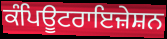
ਕੰਪਿਊਟਰਾਇਜ਼ੇਸ਼ਨ